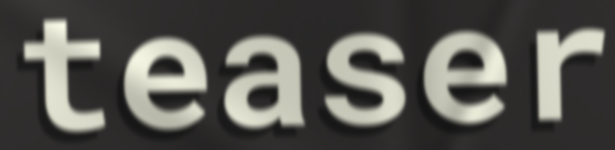
teaser